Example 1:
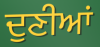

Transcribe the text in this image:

ਦੁਣੀਆਂ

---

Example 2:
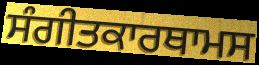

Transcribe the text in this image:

ਸੰਗੀਤਕਾਰਥਾਮਸ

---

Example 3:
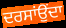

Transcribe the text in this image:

ਦਰਸਾਂਉਂਦਾ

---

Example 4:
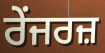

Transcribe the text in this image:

ਰੇਂਜਰਜ਼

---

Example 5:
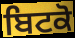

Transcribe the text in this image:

ਬਿਟਕੋ